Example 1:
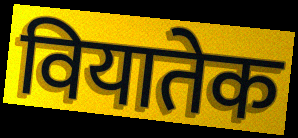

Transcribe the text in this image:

वियातेक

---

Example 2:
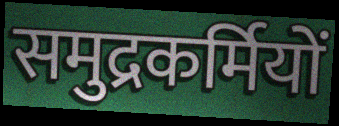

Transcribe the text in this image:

समुद्रकर्मियों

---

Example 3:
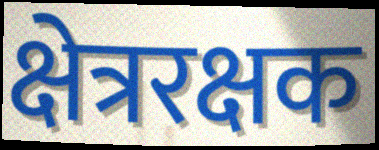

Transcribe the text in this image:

क्षेत्ररक्षक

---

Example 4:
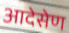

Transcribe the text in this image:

आदेसेण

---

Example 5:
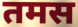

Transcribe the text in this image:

तमस